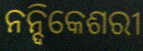
ନନ୍ଦିକେଶରୀ